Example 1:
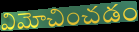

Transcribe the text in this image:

విమోచించడం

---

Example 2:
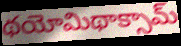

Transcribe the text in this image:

థయోమిథాక్సామ్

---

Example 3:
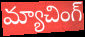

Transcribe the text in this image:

మ్యాచింగ్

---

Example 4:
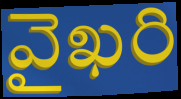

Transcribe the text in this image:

వైఖరి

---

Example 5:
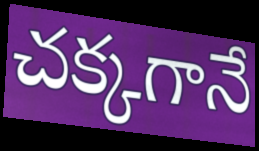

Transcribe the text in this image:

చక్కగానే